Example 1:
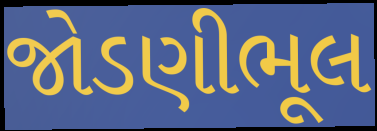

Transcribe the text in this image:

જોડણીભૂલ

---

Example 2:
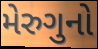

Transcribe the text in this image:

મેરુગુનો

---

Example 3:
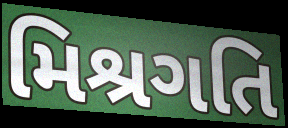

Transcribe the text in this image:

મિશ્રગતિ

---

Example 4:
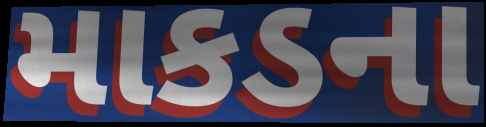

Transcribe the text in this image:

માકડના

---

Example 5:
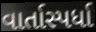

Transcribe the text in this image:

વાર્તાસ્પર્ધા